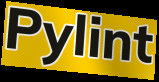
Pylint